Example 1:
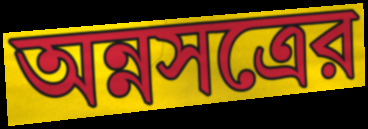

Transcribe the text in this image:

অন্নসত্রের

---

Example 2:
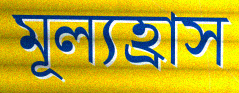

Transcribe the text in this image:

মূল্যহ্রাস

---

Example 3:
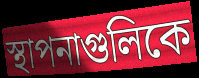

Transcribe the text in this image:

স্থাপনাগুলিকে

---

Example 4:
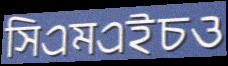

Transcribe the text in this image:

সিএমএইচও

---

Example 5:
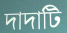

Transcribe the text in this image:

দাদাটি